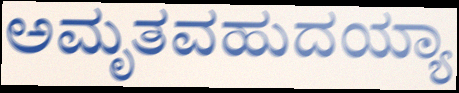
ಅಮೃತವಹುದಯ್ಯಾ